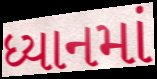
ધ્યાનમાં